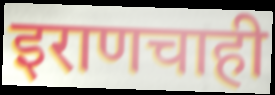
इराणचाही